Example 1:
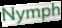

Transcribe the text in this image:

Nymph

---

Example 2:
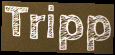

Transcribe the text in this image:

Tripp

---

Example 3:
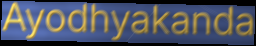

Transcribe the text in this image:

Ayodhyakanda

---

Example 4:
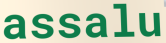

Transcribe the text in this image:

assalu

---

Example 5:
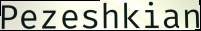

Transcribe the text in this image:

Pezeshkian